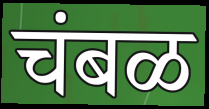
चंबळ